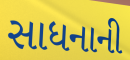
સાધનાની